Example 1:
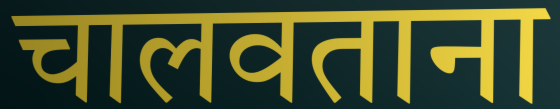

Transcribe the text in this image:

चालवताना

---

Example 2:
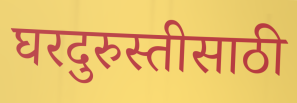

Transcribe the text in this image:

घरदुरुस्तीसाठी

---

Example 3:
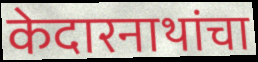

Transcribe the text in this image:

केदारनाथांचा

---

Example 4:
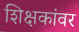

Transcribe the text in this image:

शिक्षकांवर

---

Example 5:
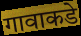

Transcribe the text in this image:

गावाकडे